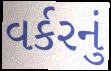
વર્કરનું